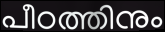
പീഠത്തിനും